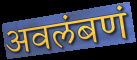
अवलंबणं